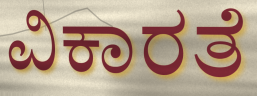
ವಿಕಾರತೆ